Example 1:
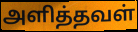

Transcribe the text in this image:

அளித்தவள்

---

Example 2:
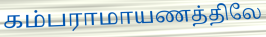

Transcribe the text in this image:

கம்பராமாயணத்திலே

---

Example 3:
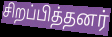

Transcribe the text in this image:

சிறப்பித்தனர்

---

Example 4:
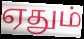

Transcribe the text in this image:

ஏதும்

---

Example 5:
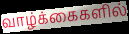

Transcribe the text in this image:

வாழ்க்கைகளில்